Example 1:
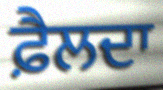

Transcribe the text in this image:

ਫ਼ੈਲਦਾ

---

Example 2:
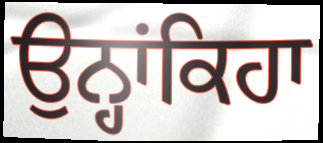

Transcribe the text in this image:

ਉਨ੍ਹਾਂਕਿਹਾ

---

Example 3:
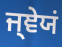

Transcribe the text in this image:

ਜ੍ਞੇਯਂ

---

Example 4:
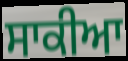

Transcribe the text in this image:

ਸਾਕੀਆ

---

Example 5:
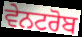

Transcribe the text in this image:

ਵੇਨਟਰੋਬ